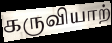
கருவியாற்